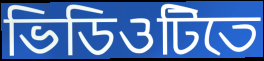
ভিডিওটিতে